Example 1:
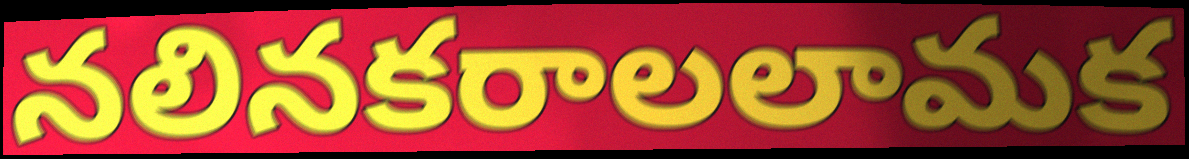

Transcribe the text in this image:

నలినకరాలలామక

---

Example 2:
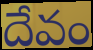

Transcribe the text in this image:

దేవం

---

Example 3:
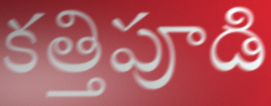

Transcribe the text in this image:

కత్తిపూడి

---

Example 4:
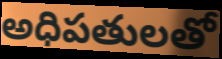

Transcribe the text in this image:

అధిపతులతో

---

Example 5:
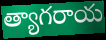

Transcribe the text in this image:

త్యాగరాయ